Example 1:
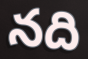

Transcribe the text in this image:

నది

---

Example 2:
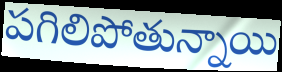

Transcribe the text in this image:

పగిలిపోతున్నాయి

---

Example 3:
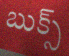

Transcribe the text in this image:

బుక్స్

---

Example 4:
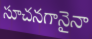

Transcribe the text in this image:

సూచనగానైనా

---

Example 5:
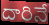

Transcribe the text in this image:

దారినే